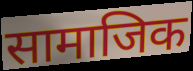
सामाजिक